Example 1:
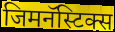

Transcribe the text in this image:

जिमनॅस्टिक्स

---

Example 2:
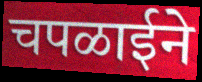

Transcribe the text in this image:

चपळाईने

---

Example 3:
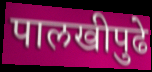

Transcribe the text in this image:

पालखीपुढे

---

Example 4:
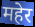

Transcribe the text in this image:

महेर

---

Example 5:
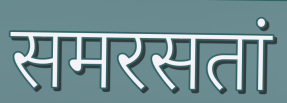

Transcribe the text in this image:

समरसतां